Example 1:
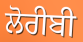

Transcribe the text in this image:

ਲੋਰੀਬੀ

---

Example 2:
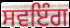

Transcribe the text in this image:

ਸਵਇੰਗ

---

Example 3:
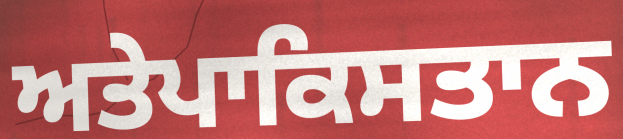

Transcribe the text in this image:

ਅਤੇਪਾਕਿਸਤਾਨ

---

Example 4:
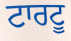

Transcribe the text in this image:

ਟਾਰਟੂ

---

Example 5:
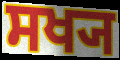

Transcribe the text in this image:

ਸਖ੍ਯ